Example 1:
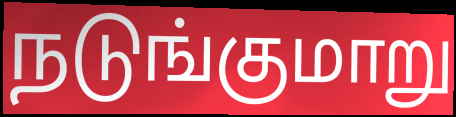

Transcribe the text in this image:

நடுங்குமாறு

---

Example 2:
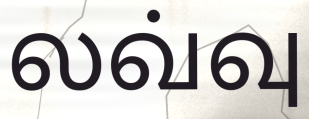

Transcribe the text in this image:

லவ்வு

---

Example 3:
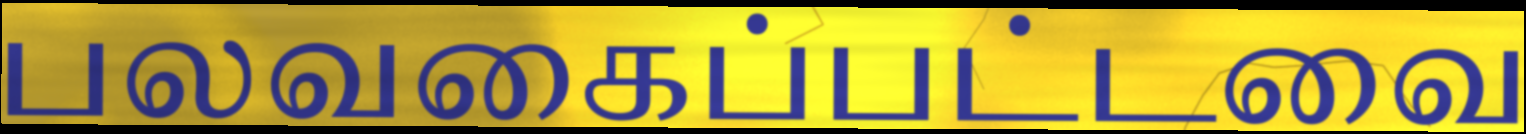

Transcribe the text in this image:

பலவகைப்பட்டவை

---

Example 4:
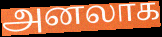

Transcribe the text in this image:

அனலாக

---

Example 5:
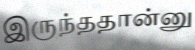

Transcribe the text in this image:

இருந்ததான்னு